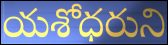
యశోధరుని